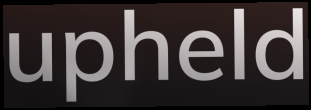
upheld